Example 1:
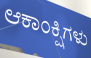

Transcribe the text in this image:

ಆಕಾಂಕ್ಷಿಗಳು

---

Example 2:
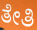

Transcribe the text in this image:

ತೇತಿ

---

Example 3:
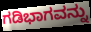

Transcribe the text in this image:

ಗಡಿಭಾಗವನ್ನು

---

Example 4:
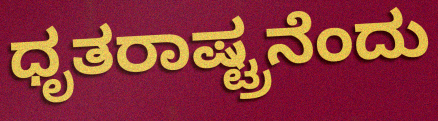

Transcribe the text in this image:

ಧೃತರಾಷ್ಟ್ರನೆಂದು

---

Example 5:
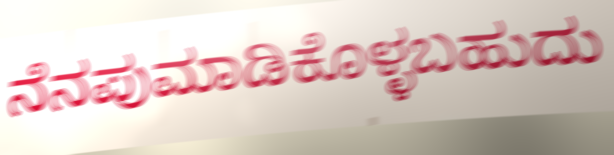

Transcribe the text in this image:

ನೆನಪುಮಾಡಿಕೊಳ್ಳಬಹುದು